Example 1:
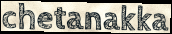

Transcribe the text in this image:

chetanakka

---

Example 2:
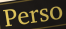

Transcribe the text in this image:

Perso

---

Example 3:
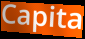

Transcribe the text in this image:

Capita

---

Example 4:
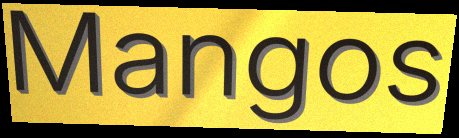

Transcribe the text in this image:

Mangos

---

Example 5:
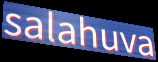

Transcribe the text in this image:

salahuva